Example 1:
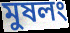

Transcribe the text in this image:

মুষলং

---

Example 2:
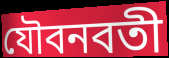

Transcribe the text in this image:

যৌবনবতী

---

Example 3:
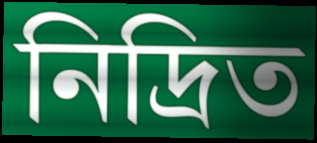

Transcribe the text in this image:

নিদ্রিত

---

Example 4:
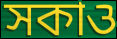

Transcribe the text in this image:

সকাও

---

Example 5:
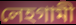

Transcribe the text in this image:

লেহগামী